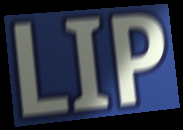
LIP